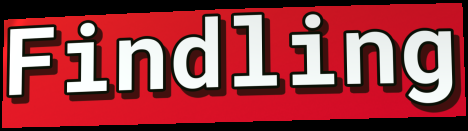
Findling